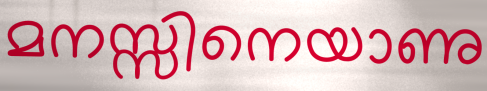
മനസ്സിനെയാണു